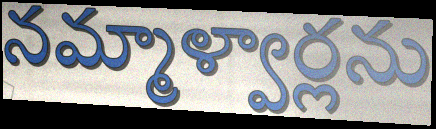
నమ్మాళ్వార్లను